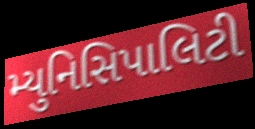
મ્યુનિસિપાલિટી